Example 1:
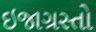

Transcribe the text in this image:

ઇજાગ્રસ્તો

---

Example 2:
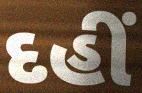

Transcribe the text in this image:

દહીં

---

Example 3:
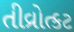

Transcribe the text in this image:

તીવ્રોત્કટ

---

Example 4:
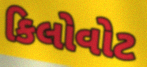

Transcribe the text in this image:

કિલોવોટ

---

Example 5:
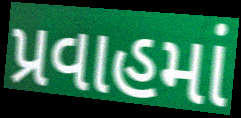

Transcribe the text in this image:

પ્રવાહમાં